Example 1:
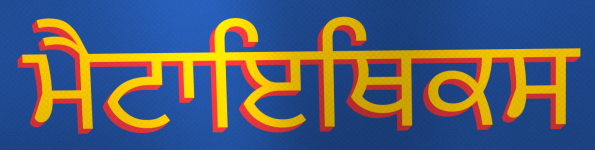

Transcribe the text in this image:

ਮੈਟਾਇਥਿਕਸ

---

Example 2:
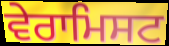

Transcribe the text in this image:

ਵੇਰਾਮਿਸਟ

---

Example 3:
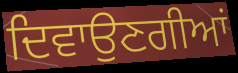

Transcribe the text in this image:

ਦਿਵਾਉਣਗੀਆਂ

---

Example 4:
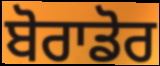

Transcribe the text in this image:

ਬੋਰਾਡੋਰ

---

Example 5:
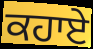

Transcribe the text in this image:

ਕਹਾਏ